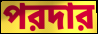
পরদার